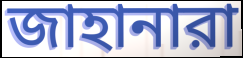
জাহানারা